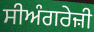
ਸੀਅੰਗਰੇਜ਼ੀ